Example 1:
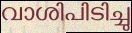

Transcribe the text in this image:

വാശിപിടിച്ചു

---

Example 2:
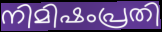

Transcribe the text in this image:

നിമിഷംപ്രതി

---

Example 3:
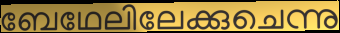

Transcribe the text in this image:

ബേഥേലിലേക്കുചെന്നു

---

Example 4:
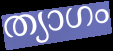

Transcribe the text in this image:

ത്യാഗം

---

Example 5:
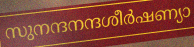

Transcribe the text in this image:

സുനന്ദനന്ദശീർഷണ്യാ